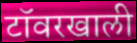
टॉवरखाली